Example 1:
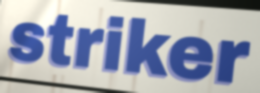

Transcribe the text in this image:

striker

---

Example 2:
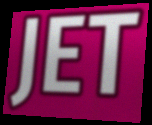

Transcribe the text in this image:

JET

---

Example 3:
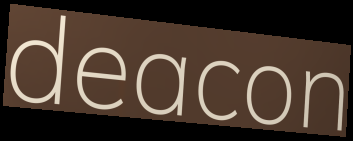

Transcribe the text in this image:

deacon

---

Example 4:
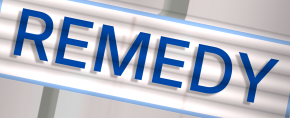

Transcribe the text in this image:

REMEDY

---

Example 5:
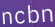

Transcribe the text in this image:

ncbn